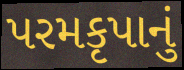
પરમકૃપાનું